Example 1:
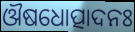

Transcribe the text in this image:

ଔଷଧୋତ୍ପାଦନଃ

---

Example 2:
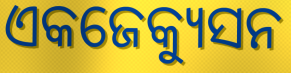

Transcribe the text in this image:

ଏକଜେକ୍ୟୁସନ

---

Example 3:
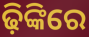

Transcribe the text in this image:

ଢ଼ିଙ୍କିରେ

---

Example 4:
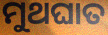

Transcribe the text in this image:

ମୁଥଘାତ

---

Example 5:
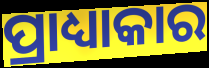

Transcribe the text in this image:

ପ୍ରାଧ୍ୟାକାର